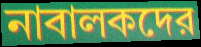
নাবালকদের